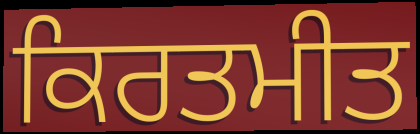
ਕਿਰਤਮੀਤ